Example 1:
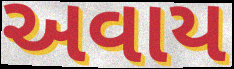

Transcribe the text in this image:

અવાય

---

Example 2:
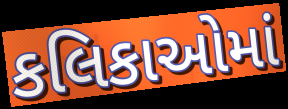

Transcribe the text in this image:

કલિકાઓમાં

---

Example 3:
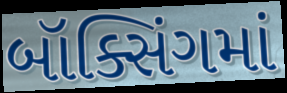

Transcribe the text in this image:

બૉક્સિંગમાં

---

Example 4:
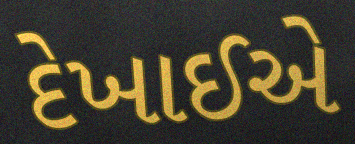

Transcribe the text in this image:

દેખાઈએ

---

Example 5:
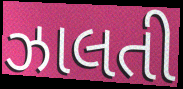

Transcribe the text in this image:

ઝાલતી